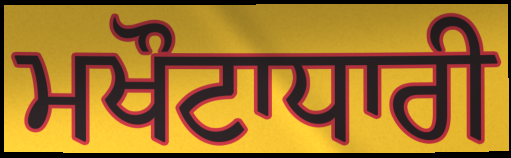
ਮਖੌਟਾਧਾਰੀ